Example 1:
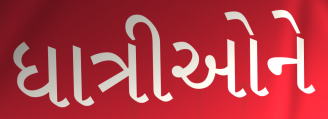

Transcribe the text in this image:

ધાત્રીઓને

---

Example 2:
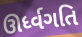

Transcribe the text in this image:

ઊર્ધ્વગતિ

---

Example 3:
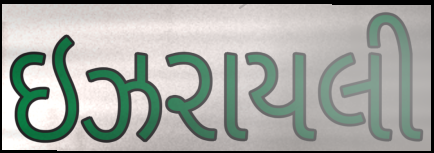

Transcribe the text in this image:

ઇઝરાયલી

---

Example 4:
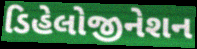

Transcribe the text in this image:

ડિહેલોજીનેશન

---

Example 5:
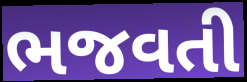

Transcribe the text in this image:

ભજવતી